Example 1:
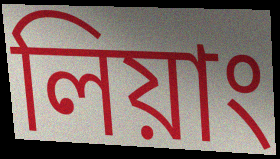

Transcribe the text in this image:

লিয়াং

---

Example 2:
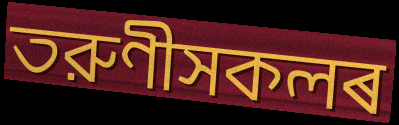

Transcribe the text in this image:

তৰুণীসকলৰ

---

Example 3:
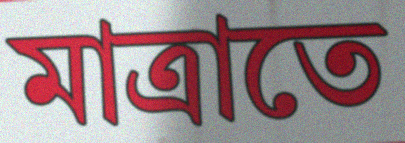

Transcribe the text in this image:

মাত্ৰাতে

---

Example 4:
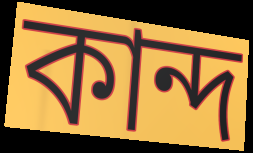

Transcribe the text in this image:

কান্দ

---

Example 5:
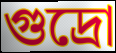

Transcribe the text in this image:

গুদ্ৰো